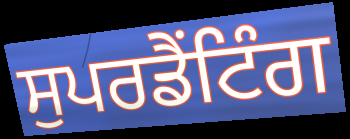
ਸੁਪਰਡੈਂਟਿੰਗ